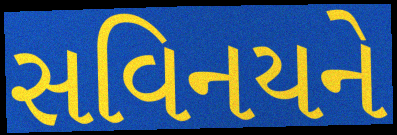
સવિનયને